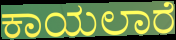
ಕಾಯಲಾರೆ